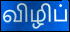
விழிப்